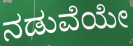
ನಡುವೆಯೇ